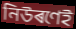
নিউৰণেই